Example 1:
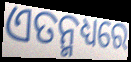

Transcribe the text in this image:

ଏତନ୍ମଧ୍ୟରେ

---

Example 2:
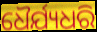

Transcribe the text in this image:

ଧୈର୍ଯ୍ୟଧରି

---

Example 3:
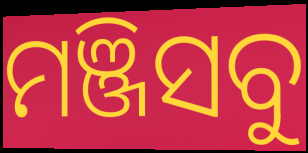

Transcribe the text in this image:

ମଞ୍ଜିସବୁ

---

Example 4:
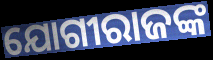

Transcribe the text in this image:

ଯୋଗୀରାଜଙ୍କ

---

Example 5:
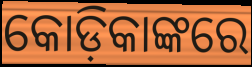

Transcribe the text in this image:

କୋଡ଼ିକାଙ୍କରେ